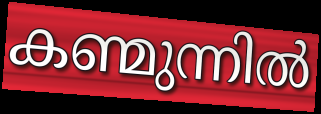
കണ്മുന്നിൽ